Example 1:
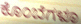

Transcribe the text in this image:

ಕೊಂಬೆಗಳೂ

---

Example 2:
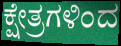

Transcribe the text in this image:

ಕ್ಷೇತ್ರಗಳಿಂದ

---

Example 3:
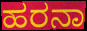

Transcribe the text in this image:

ಹರನಾ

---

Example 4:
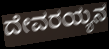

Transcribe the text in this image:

ದೇವರಯ್ಯನ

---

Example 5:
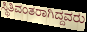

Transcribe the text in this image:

ಸ್ಥಿತಿವಂತರಾಗಿದ್ದವರು